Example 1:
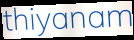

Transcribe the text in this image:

thiyanam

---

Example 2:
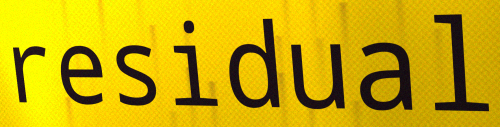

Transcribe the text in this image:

residual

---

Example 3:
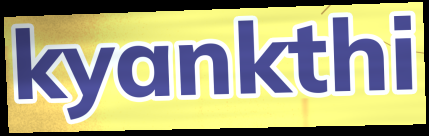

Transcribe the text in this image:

kyankthi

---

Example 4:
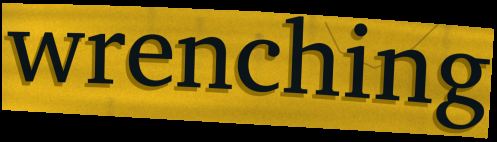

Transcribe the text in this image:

wrenching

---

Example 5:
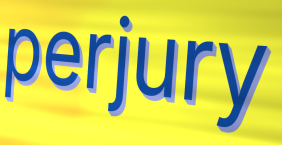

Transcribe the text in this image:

perjury